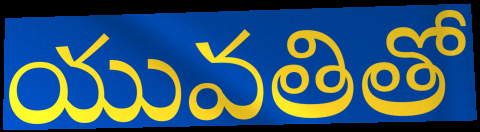
యువతితో